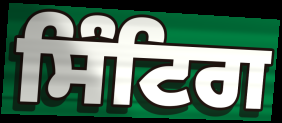
ਸਿੰਟਿਗ